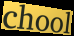
chool